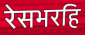
रेसभरहि